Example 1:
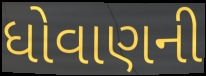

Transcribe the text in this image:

ધોવાણની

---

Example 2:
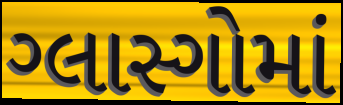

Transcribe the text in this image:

ગ્લાસ્ગોમાં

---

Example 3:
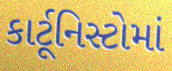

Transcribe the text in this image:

કાર્ટૂનિસ્ટોમાં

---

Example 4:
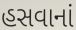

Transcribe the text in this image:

હસવાનાં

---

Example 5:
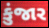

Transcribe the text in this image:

કુંજાર